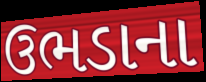
ઉભડાના